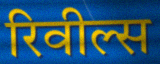
रिवील्स